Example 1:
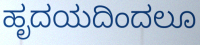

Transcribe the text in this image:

ಹೃದಯದಿಂದಲೂ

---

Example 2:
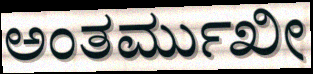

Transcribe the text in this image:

ಅಂತರ್ಮುಖೀ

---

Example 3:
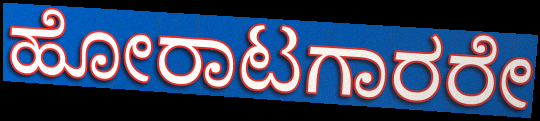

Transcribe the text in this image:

ಹೋರಾಟಗಾರರೇ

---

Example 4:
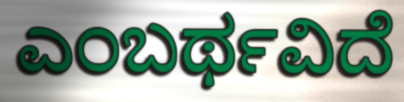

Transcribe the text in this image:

ಎಂಬರ್ಥವಿದೆ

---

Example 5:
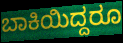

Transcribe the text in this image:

ಬಾಕಿಯಿದ್ದರೂ